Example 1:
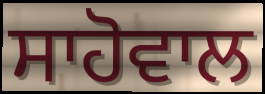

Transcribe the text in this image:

ਸਾਹੋਵਾਲ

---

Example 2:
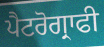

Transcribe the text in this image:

ਪੈਟਰੋਗ੍ਰਾਫੀ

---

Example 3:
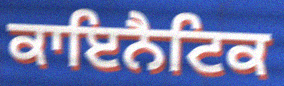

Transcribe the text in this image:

ਕਾਇਨੈਟਿਕ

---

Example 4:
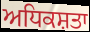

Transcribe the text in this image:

ਅਧਿਕਸ਼ਤਾ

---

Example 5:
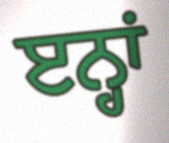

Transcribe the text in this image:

ੲਨ੍ਹਾਂ